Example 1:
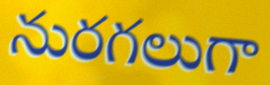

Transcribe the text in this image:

నురగలుగా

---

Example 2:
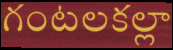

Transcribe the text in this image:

గంటలకల్లా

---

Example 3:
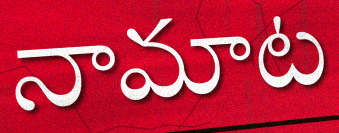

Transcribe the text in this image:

నామాట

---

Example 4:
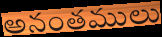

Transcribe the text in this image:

అనంతములు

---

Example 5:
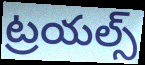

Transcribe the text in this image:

ట్రయల్స్